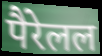
पैरेलल